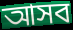
আসব